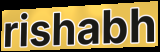
rishabh